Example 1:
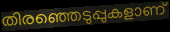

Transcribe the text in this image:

തിരഞ്ഞെടുപ്പുകളാണ്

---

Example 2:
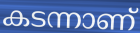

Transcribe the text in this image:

കടന്നാണ്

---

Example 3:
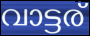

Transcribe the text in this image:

വാട്ടര്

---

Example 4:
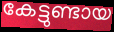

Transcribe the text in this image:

കേട്ടുണ്ടായ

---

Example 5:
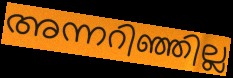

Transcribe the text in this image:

അന്നറിഞ്ഞില്ല